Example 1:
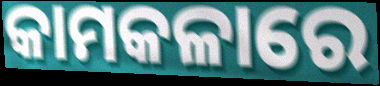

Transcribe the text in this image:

କାମକଳାରେ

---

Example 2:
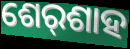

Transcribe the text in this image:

ଶେର୍‌ଶାହ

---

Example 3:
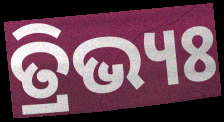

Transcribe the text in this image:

ତ୍ରିଭ୍ୟଃ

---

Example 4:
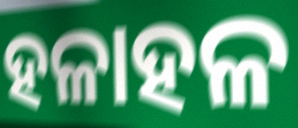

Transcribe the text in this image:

ହଳାହଳ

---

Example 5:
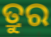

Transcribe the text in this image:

ତ୍ରୁର